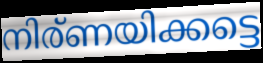
നിര്ണയിക്കട്ടെ